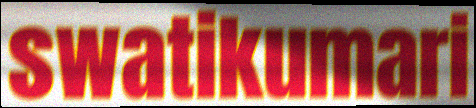
swatikumari